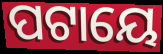
ପଟାୟେ